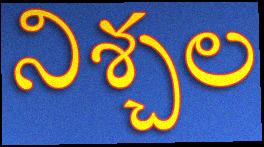
నిశ్చల